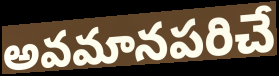
అవమానపరిచే